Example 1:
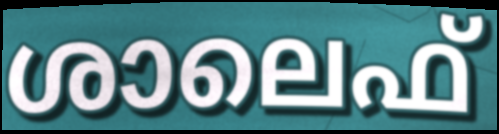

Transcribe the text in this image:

ശാലെഫ്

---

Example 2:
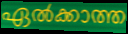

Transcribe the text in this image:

ഏൽക്കാത്ത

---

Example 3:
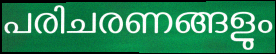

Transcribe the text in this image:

പരിചരണങ്ങളും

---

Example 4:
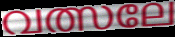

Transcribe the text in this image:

വത്സലേ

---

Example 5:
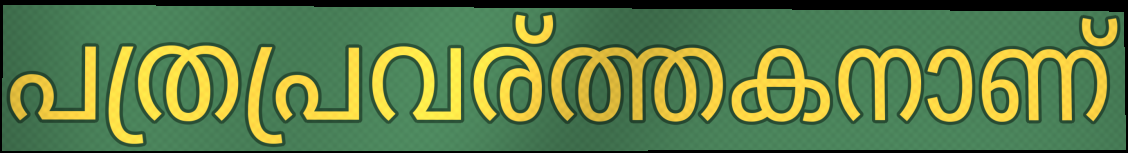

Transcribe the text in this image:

പത്രപ്രവര്ത്തകനാണ്